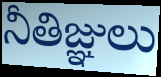
నీతిజ్ఞులు